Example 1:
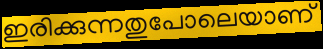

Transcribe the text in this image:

ഇരിക്കുന്നതുപോലെയാണ്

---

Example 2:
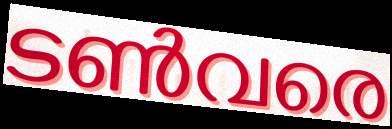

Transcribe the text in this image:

ടൺവരെ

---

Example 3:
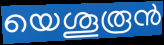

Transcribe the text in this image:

യെശൂരൂൻ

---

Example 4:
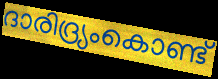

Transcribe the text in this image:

ദാരിദ്ര്യംകൊണ്ട്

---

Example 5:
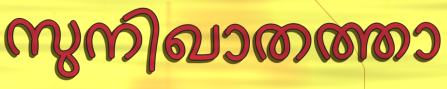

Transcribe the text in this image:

സുനിഖാതത്താ